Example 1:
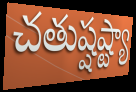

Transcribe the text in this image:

చతుష్షష్ట్యా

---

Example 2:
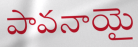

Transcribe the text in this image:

పావనాయై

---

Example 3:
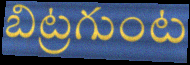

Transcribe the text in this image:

బిట్రగుంట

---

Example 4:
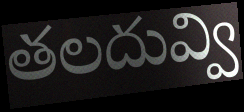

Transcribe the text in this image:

తలదువ్వి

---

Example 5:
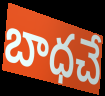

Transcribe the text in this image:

బాధచే